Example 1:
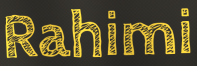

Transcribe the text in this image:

Rahimi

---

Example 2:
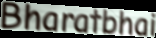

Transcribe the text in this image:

Bharatbhai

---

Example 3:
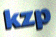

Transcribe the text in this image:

kzp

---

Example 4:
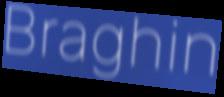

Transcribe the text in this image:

Braghin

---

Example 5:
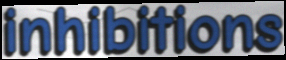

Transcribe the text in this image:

inhibitions